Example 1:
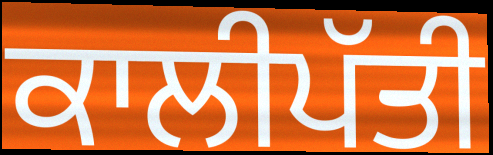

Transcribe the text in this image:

ਕਾਲੀਪੱਤੀ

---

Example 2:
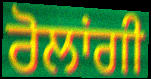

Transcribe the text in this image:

ਰੋਲਾਂਗੀ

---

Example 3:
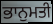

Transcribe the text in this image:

ਭਾਨੁਮਤੀ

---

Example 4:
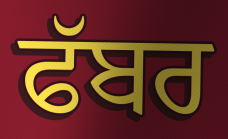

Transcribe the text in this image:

ਫੱਬਰ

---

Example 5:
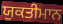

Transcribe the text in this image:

ਯੁਕਤੀਮਾਨ